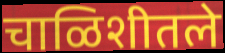
चाळिशीतले